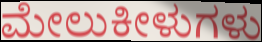
ಮೇಲುಕೀಳುಗಳು